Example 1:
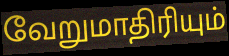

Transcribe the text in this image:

வேறுமாதிரியும்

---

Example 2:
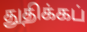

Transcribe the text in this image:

துதிக்கப்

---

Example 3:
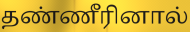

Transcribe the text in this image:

தண்ணீரினால்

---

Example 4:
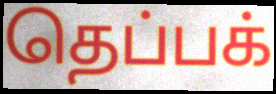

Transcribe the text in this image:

தெப்பக்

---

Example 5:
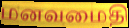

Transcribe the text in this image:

மனவமைதி